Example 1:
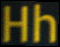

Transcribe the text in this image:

Hh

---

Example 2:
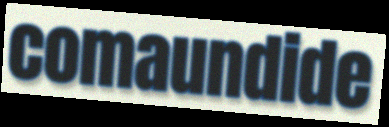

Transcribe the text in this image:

comaundide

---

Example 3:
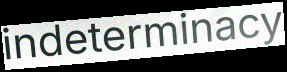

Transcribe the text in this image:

indeterminacy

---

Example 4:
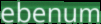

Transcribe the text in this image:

ebenum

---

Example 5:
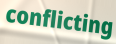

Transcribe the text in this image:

conflicting